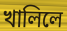
খালিলে